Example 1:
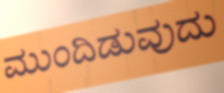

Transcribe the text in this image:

ಮುಂದಿಡುವುದು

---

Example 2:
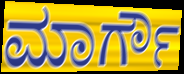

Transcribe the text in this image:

ಮಾರ್ಗೌ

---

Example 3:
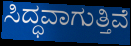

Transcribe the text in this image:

ಸಿದ್ಧವಾಗುತ್ತಿವೆ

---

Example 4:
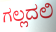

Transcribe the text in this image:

ಗಲ್ಲದಲಿ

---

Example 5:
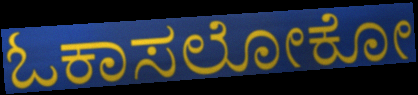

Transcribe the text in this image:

ಓಕಾಸಲೋಕೋ